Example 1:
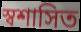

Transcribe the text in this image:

স্বশাসিত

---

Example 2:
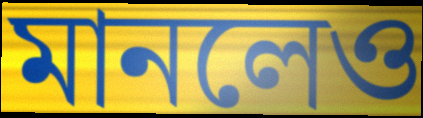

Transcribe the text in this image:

মানলেও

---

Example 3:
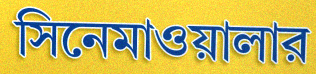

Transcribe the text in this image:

সিনেমাওয়ালার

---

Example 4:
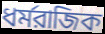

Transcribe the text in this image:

ধর্মরাজিক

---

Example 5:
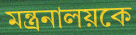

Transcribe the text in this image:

মন্ত্রনালয়কে